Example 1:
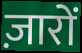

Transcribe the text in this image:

ज़ारों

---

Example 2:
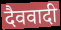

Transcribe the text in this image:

दैववादी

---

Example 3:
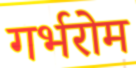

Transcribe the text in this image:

गर्भरोम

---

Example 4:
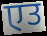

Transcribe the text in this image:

एउ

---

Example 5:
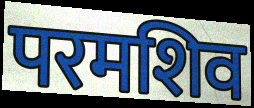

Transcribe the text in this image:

परमशिव